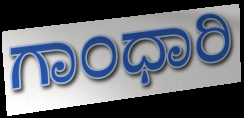
ಗಾಂಧಾರಿ